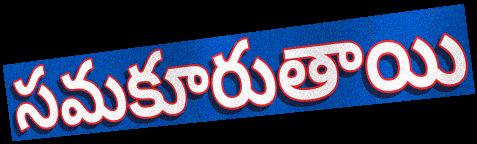
సమకూరుతాయి